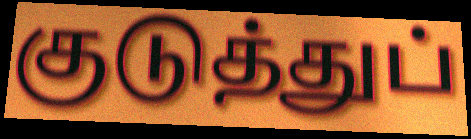
குடுத்துப்